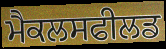
ਮੈਕਲਸਫੀਲਡ